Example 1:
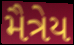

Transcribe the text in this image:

મૈત્રેય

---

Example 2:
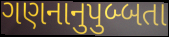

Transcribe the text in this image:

ગણનાનુપુબ્બતા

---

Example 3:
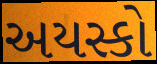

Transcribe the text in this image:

અયસ્કો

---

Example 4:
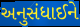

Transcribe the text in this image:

અનુસંધાઈને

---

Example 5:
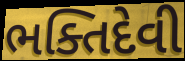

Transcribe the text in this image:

ભક્તિદેવી